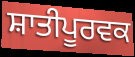
ਸ਼ਾਤੀਪੂਰਵਕ